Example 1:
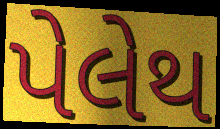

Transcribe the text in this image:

પેલેથ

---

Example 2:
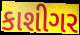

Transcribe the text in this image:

કાશીગર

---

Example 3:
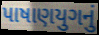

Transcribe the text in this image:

પાષાણયુગનું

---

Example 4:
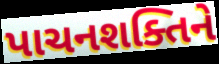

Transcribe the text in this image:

પાચનશક્તિને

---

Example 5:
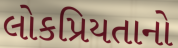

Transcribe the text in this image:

લોકપ્રિયતાનો